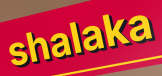
shalaka